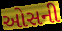
ઓસની